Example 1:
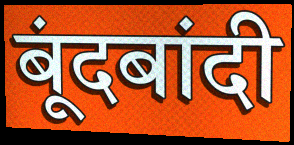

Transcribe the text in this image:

बूंदबांदी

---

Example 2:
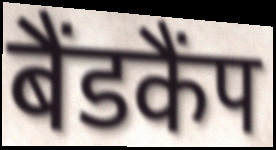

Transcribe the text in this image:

बैंडकैंप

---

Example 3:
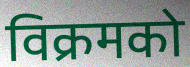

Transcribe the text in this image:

विक्रमको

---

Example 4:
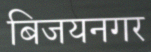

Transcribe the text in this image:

बिजयनगर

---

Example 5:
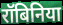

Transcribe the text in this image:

रॉबिनिया